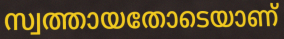
സ്വത്തായതോടെയാണ്